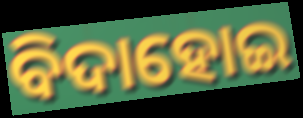
ବିଦାହୋଇ